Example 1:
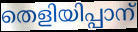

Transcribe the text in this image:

തെളിയിപ്പാന്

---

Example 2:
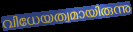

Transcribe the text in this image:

വിധേയത്വമായിരുന്നു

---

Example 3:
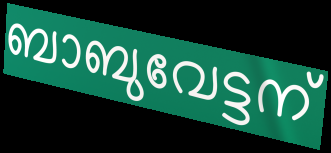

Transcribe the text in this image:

ബാബുവേട്ടന്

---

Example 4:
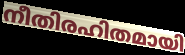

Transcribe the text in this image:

നീതിരഹിതമായി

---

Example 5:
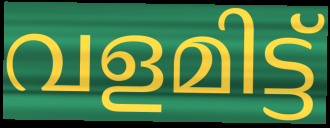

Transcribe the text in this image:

വളമിട്ട്